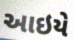
આઇયે